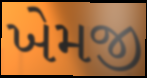
ખેમજી